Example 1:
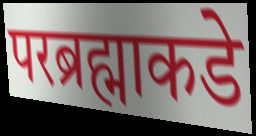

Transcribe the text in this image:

परब्रह्माकडे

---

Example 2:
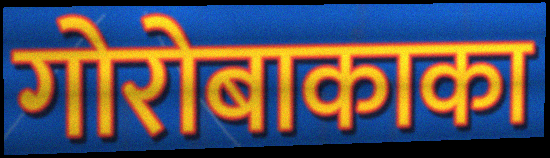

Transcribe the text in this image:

गोरोबाकाका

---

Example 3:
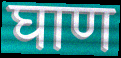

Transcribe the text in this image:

घाण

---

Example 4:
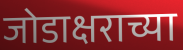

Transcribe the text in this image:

जोडाक्षराच्या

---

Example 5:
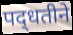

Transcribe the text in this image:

पद्‍धतीने